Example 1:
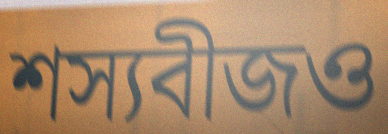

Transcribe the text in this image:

শস্যবীজও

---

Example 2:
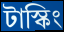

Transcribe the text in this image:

টাস্কিং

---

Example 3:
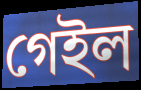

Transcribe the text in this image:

গেইল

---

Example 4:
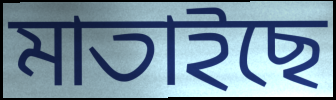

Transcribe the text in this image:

মাতাইছে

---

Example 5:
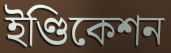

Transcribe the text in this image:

ইণ্ডিকেশন